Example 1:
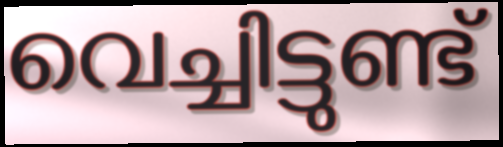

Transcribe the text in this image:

വെച്ചിട്ടുണ്ട്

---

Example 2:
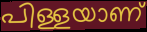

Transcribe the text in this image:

പിള്ളയാണ്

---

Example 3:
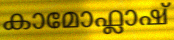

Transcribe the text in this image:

കാമോഫ്ലാഷ്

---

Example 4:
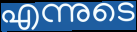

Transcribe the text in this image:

എന്നുടെ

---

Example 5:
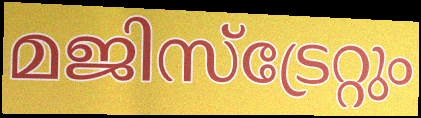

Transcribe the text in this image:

മജിസ്ട്രേറ്റും